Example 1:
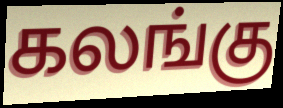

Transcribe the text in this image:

கலங்கு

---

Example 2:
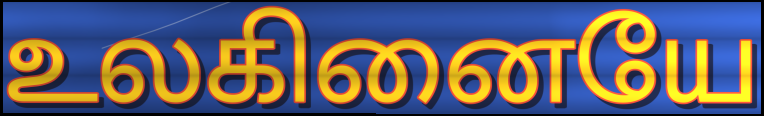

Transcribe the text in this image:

உலகினையே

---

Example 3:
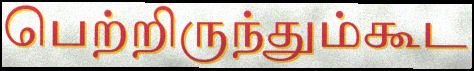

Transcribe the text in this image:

பெற்றிருந்தும்கூட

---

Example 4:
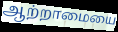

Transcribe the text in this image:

ஆற்றாமையை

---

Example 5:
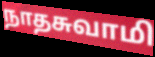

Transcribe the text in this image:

நாதசுவாமி